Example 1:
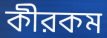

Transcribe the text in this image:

কীরকম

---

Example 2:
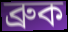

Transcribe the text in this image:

ব্রুক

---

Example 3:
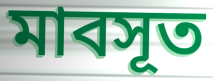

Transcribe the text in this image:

মাবসূত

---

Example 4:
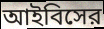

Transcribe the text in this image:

আইবিসের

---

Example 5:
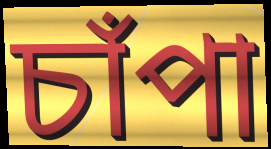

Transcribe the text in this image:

চাঁপা